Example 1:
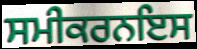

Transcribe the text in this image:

ਸਮੀਕਰਨਇਸ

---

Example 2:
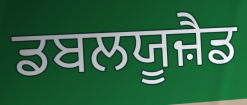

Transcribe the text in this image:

ਡਬਲਯੂਜ਼ੈਡ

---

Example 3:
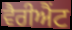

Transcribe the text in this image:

ਵੈਰੀਐਂਟ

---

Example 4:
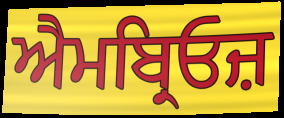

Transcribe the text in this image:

ਐਮਬ੍ਰਿਓਜ਼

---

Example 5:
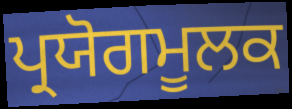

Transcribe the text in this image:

ਪ੍ਰਯੋਗਮੂਲਕ